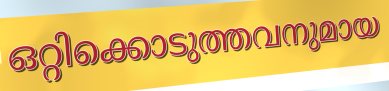
ഒറ്റിക്കൊടുത്തവനുമായ